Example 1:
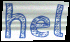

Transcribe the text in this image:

hel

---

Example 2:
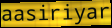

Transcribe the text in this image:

aasiriyar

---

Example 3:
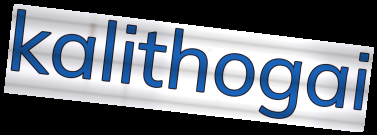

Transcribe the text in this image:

kalithogai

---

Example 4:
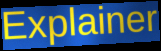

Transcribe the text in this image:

Explainer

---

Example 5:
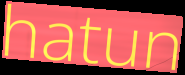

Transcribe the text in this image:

hatun